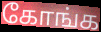
கோங்க